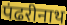
पंढरीनाथ